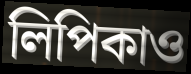
লিপিকাও